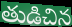
తుడిచిన